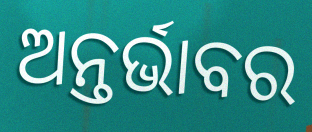
ଅନ୍ତର୍ଭାବର